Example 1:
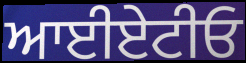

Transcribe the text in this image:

ਆਈਏਟੀਓ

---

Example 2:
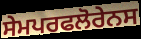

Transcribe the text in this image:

ਸੇਮਪਰਫਲੋਰੇਨਸ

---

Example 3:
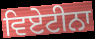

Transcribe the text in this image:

ਵਿਏਟੀਨਾ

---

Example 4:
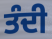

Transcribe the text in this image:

ਤੰਦੀ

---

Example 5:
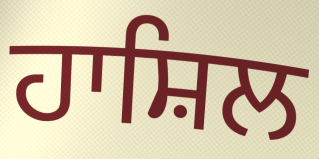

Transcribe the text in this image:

ਹਾਸ਼ਿਲ